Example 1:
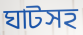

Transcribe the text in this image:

ঘাটসহ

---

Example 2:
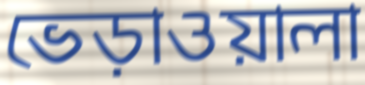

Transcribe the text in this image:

ভেড়াওয়ালা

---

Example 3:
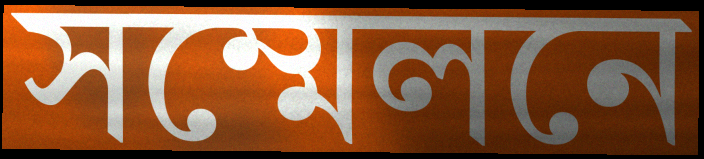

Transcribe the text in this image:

সম্মেলনে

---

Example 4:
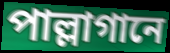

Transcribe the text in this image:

পাল্লাগানে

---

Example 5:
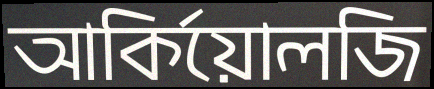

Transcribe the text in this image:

আর্কিয়োলজি